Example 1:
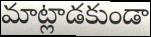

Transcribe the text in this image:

మాట్లాడకుండా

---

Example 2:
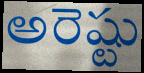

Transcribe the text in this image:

అరెష్టు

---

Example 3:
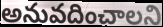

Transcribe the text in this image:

అనువదించాలని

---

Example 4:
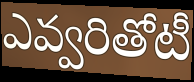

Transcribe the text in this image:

ఎవ్వరితోటీ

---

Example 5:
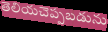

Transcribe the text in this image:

తెలియచెప్పబడును